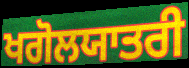
ਖਗੋਲਯਾਤਰੀ